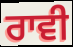
ਰਾਵੀ